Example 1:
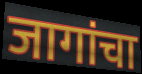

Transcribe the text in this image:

जागांचा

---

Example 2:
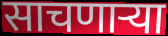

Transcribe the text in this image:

साचणार्‍या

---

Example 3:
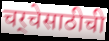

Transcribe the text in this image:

चर्चेसाठीची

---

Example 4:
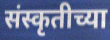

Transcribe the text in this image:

संस्कृतीच्या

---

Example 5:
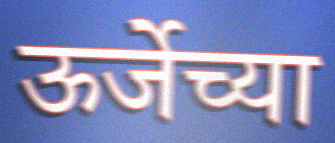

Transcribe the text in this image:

ऊर्जेच्या